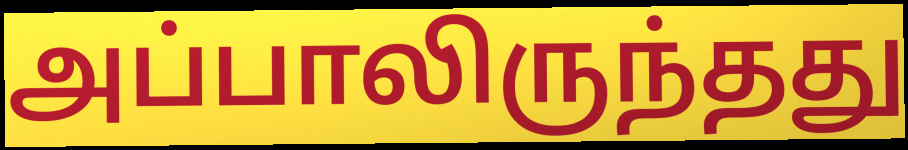
அப்பாலிருந்தது